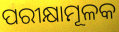
ପରୀକ୍ଷାମୂଳକ